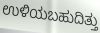
ಉಳಿಯಬಹುದಿತ್ತು